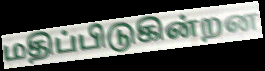
மதிப்பிடுகின்றன